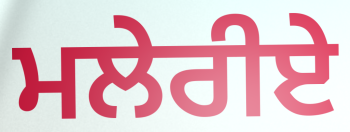
ਮਲੇਰੀਏ